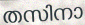
തസിനാ